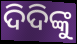
ଦିଦିଙ୍କୁ